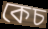
কেচ